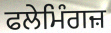
ਫਲੇਮਿੰਗਜ਼